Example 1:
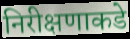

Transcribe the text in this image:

निरीक्षणाकडे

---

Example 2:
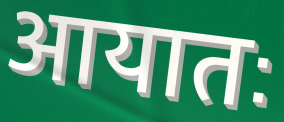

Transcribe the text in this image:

आयातः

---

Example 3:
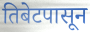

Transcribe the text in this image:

तिबेटपासून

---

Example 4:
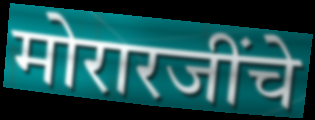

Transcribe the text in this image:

मोरारजींचे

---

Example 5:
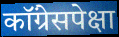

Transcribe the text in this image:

कॉंग्रेसपेक्षा